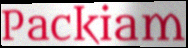
Packiam